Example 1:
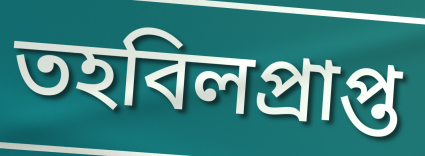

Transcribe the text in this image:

তহবিলপ্রাপ্ত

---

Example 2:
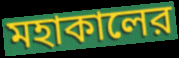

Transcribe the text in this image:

মহাকালের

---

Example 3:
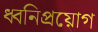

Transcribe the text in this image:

ধ্বনিপ্রয়োগ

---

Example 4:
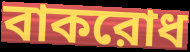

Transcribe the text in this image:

বাকরোধ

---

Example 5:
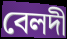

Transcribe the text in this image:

বেলদী